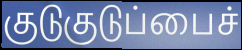
குடுகுடுப்பைச்